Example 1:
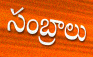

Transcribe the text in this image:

సంబ్రాలు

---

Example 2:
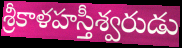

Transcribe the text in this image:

శ్రీకాళహస్తీశ్వరుడు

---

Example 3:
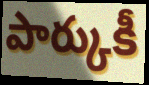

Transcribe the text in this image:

పార్కుకీ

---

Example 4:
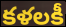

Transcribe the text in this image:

కళలకీ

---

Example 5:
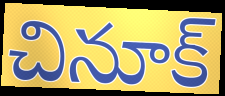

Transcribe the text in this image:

చినూక్